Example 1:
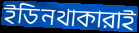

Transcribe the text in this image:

ইডিনথাকারাই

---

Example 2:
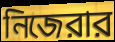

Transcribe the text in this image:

নিজেরার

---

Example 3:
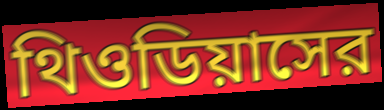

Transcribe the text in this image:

থিওডিয়াসের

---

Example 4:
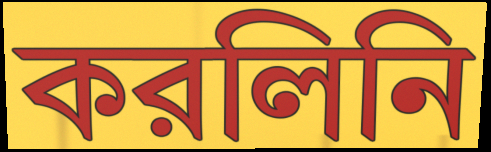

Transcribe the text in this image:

করলিনি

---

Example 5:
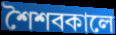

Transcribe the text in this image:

শৈশবকালে